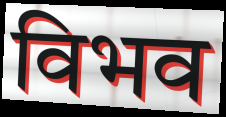
विभव